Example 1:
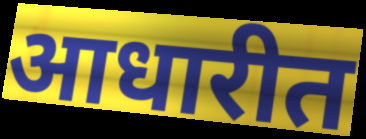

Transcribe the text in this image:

आधारीत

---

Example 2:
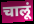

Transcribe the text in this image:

चालूं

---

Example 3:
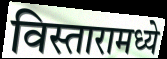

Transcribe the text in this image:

विस्तारामध्ये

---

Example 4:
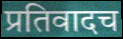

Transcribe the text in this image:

प्रतिवादच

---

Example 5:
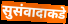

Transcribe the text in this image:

सुसंवादाकडे